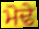
ਮੋਢੇ